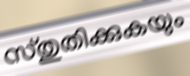
സ്തുതിക്കുകയും